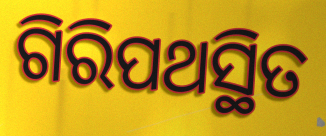
ଗିରିପଥସ୍ଥିତ